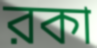
রকা